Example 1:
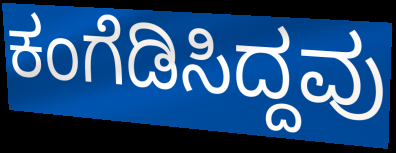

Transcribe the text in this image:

ಕಂಗೆಡಿಸಿದ್ದವು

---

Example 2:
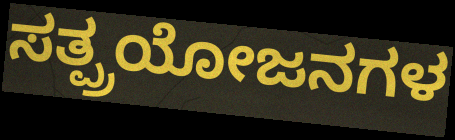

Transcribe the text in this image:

ಸತ್ಪ್ರಯೋಜನಗಳ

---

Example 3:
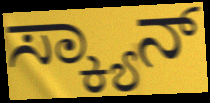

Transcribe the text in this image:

ಸ್ಕ್ಯಾನ್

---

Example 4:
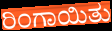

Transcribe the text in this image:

ರಿಂಗಾಯಿತು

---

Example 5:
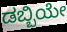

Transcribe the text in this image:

ಡಬ್ಬಿಯೇ